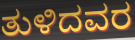
ತುಳಿದವರ